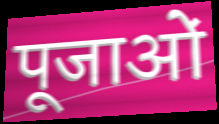
पूजाओं